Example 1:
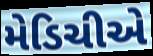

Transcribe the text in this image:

મેડિચીએ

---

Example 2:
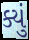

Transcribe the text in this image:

ક્યું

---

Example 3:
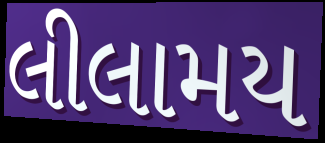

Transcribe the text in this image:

લીલામય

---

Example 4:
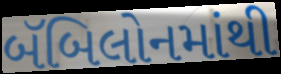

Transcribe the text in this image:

બૅબિલોનમાંથી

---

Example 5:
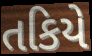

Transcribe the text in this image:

તકિયે